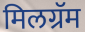
मिलग्रॅम